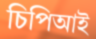
চিপিআই